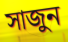
সাজুন